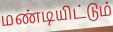
மண்டியிட்டும்